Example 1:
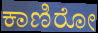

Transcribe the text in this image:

ಕಾಣಿರೋ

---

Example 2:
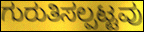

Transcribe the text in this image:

ಗುರುತಿಸಲ್ಪಟ್ಟವು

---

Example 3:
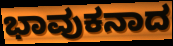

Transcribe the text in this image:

ಭಾವುಕನಾದ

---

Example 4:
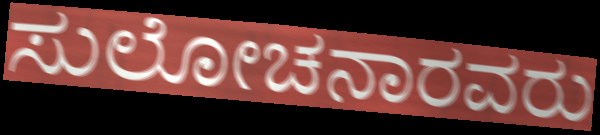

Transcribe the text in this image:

ಸುಲೋಚನಾರವರು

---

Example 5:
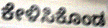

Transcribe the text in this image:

ಕೇಳಿಸಿಕೊಂಡ